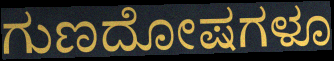
ಗುಣದೋಷಗಳೂ